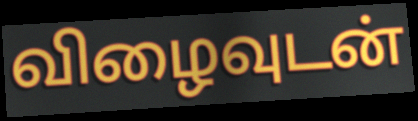
விழைவுடன்